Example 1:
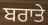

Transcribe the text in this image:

ਬਰਾਤੇ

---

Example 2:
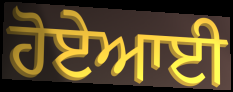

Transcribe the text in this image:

ਹੋਏਆਈ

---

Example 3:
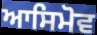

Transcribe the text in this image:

ਆਸਿਮੋਵ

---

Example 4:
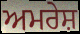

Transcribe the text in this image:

ਅਮਰੇਸ਼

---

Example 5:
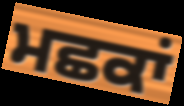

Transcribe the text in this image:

ਮਛਕਾਂ